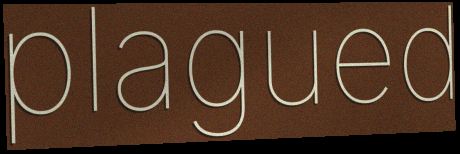
plagued